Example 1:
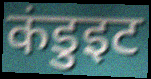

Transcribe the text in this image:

कंडुइट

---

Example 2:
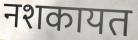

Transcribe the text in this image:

नशकायत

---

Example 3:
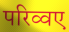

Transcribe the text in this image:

परिव्वए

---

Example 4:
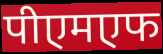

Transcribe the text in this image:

पीएमएफ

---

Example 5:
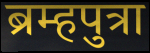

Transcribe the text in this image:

ब्रम्हपुत्रा